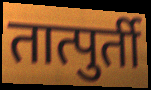
तात्पुर्ती